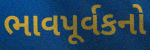
ભાવપૂર્વકનો